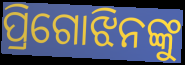
ପ୍ରିଗୋଝିନଙ୍କୁ